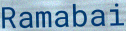
Ramabai